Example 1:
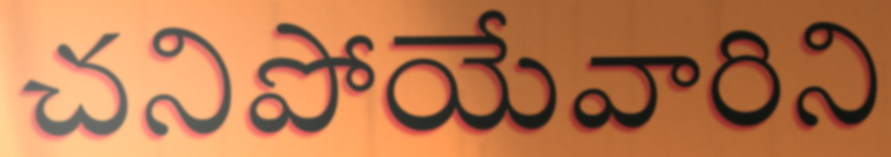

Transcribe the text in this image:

చనిపోయేవారిని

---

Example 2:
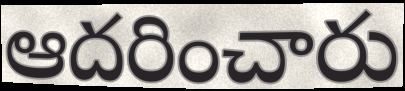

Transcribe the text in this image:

ఆదరించారు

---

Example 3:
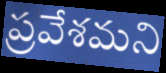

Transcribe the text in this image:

ప్రవేశమని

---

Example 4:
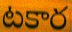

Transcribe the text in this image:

టకార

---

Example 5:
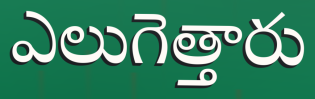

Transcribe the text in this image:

ఎలుగెత్తారు